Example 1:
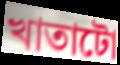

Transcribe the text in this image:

খাতাটো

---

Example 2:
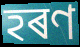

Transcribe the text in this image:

হৰণ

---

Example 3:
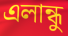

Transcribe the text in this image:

এলান্ধু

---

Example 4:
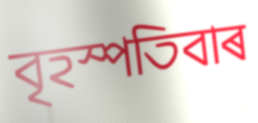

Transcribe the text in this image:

বৃহস্পতিবাৰ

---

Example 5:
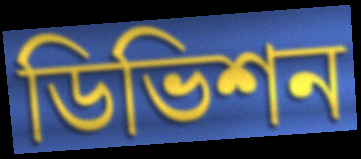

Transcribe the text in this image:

ডিভিশন